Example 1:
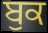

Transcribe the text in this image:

ਬੁਕ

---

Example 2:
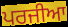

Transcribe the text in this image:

ਪਰਜੀਆ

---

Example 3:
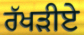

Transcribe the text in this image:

ਰੱਖੜੀਏ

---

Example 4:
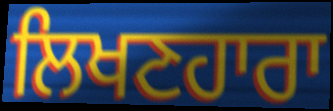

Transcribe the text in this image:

ਲਿਖਣਹਾਰਾ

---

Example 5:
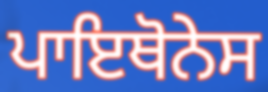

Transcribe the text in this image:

ਪਾਇਥੋਨੇਸ